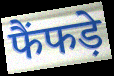
फैंफड़े